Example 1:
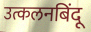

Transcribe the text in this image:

उत्कलनबिंदू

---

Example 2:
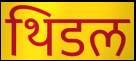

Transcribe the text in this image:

थिडल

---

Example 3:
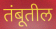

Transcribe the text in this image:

तंबूतील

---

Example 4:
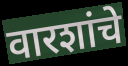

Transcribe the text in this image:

वारशांचे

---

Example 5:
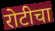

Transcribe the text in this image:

रोटीचा